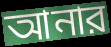
আনার